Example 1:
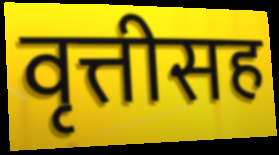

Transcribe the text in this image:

वृत्तीसह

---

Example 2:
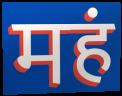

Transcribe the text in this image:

महं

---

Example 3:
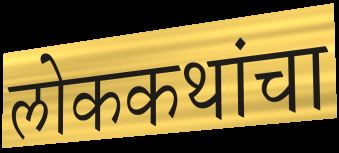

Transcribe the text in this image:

लोककथांचा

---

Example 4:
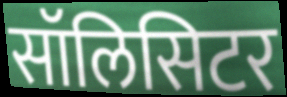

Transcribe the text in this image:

सॉलिसिटर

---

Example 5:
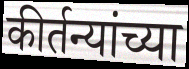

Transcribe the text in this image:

कीर्तन्यांच्या